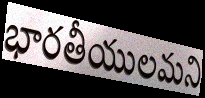
భారతీయులమని